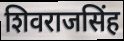
शिवराजसिंह